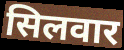
सिलवार